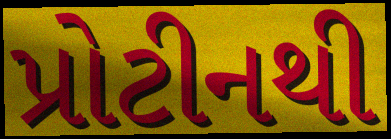
પ્રોટીનથી